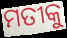
ମତୀକୁ